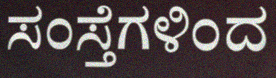
ಸಂಸ್ತೆಗಳಿಂದ